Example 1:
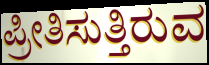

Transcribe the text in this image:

ಪ್ರೀತಿಸುತ್ತಿರುವ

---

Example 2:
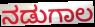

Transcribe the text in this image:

ನಡುಗಾಲ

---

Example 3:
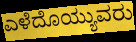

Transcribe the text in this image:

ಎಳೆದೊಯ್ಯುವರು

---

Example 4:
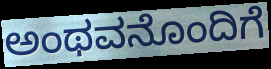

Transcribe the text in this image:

ಅಂಥವನೊಂದಿಗೆ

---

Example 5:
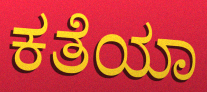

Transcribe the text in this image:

ಕತೆಯಾ